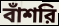
বাঁশরি